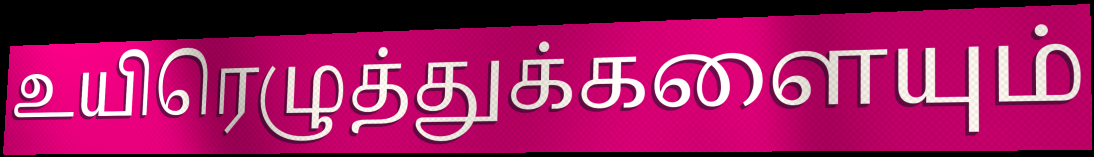
உயிரெழுத்துக்களையும்